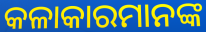
କଳାକାରମାନଙ୍କ